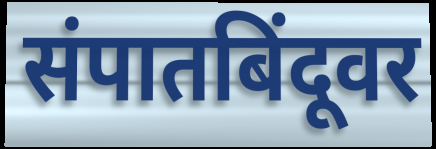
संपातबिंदूवर